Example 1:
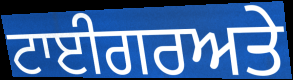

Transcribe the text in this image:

ਟਾਈਗਰਅਤੇ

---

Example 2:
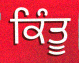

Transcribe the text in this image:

ਕਿੰਤੂ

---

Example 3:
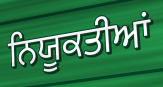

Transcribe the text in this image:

ਨਿਯੂਕਤੀਆਂ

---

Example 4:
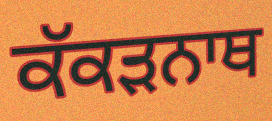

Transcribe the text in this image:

ਕੱਕੜਨਾਥ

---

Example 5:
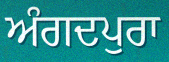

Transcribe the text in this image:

ਅੰਗਦਪੁਰਾ